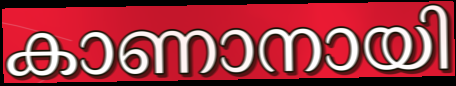
കാണാനായി